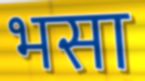
भसा